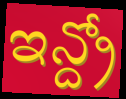
ఇన్ద్రో